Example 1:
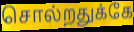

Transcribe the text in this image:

சொல்றதுக்கே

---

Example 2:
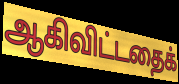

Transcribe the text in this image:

ஆகிவிட்டதைக்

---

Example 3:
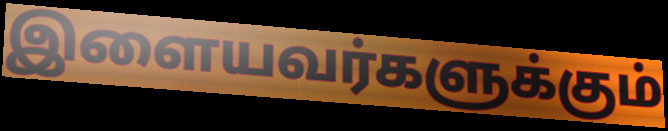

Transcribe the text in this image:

இளையவர்களுக்கும்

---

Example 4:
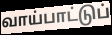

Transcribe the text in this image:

வாய்பாட்டுப்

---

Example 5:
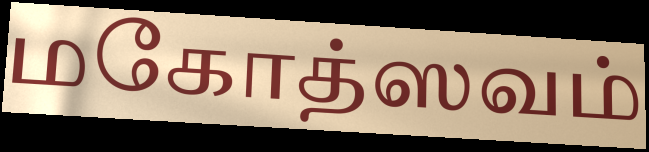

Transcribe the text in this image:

மகோத்ஸவம்